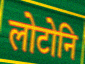
लोटोनि